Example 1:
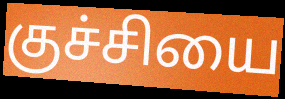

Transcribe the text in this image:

குச்சியை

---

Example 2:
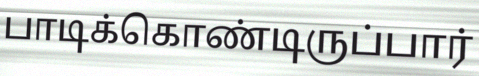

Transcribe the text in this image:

பாடிக்கொண்டிருப்பார்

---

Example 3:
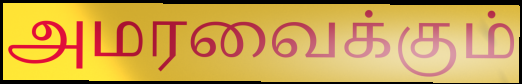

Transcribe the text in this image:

அமரவைக்கும்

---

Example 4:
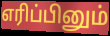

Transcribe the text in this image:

எரிப்பினும்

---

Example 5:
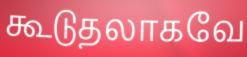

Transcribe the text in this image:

கூடுதலாகவே